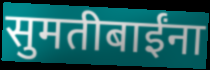
सुमतीबाईंना